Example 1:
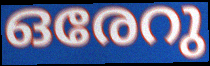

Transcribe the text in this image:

ഒരേറു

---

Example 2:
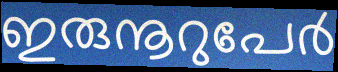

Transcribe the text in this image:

ഇരുനൂറുപേർ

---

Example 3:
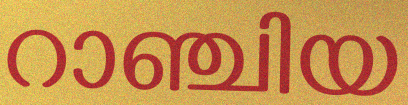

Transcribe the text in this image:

റാഞ്ചിയ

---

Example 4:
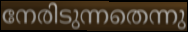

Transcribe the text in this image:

നേരിടുന്നതെന്നു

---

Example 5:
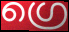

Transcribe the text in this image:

ഗ്രെ